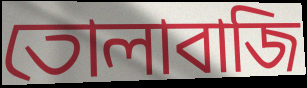
তোলাবাজি